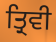
ਤ੍ਰਿਵੀ